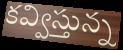
కవ్విస్తున్న